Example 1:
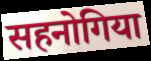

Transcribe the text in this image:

सहनोगिया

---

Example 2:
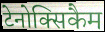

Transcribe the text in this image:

टेनोक्सिकैम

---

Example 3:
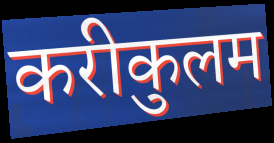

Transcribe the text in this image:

करीकुलम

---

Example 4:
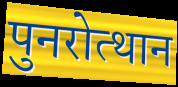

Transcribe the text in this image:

पुनरोत्थान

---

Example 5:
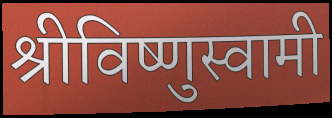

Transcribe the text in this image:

श्रीविष्णुस्वामी